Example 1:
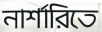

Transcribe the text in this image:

নার্শারিতে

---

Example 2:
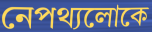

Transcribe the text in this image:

নেপথ্যলোকে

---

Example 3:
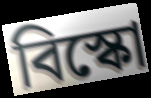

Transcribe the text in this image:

বিস্কো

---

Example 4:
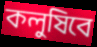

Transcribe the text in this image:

কলুষিবে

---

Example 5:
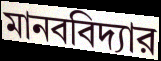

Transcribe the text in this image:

মানববিদ্যার